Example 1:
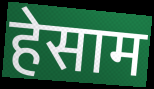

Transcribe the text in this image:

हेसाम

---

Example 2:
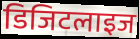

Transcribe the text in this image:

डिजिटलाइज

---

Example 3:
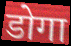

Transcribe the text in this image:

डोगा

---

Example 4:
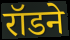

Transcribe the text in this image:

रॉडने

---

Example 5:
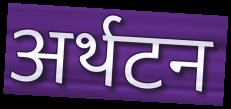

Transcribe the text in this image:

अर्थटन